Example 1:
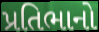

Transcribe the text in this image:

પ્રતિભાનો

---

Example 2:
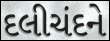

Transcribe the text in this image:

દલીચંદને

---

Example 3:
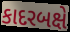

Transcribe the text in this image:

કાદરબક્ષે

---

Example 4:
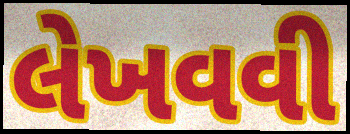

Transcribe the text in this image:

લેખવવી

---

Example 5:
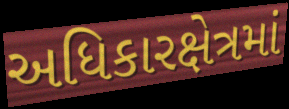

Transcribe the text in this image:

અધિકારક્ષેત્રમાં